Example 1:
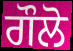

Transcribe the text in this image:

ਗੌਲੋ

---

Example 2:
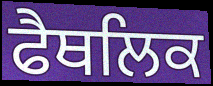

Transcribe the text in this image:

ਫੈਥਲਿਕ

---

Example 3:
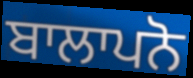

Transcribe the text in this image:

ਬਾਲਾਪਨੋ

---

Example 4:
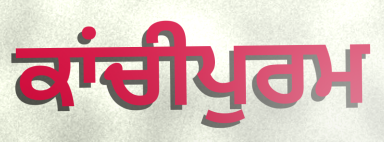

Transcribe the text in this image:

ਕਾਂਚੀਪੁਰਮ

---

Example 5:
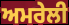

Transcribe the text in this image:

ਅਮਰੇਲੀ